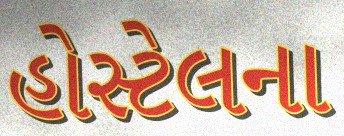
હોસ્ટેલના